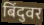
बिंदुवर